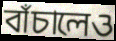
বাঁচালেও